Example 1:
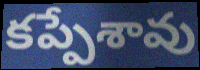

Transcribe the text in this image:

కప్పేశావు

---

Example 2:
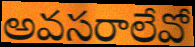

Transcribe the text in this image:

అవసరాలేవో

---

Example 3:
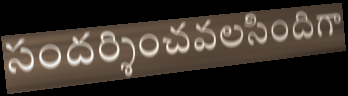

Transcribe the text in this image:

సందర్శించవలసిందిగా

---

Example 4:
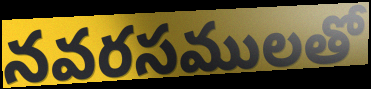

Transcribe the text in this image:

నవరసములతో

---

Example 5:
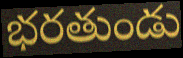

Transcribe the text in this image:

భరతుండు